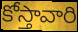
కోస్తావారి